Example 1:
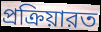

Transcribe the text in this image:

প্রক্রিয়ারত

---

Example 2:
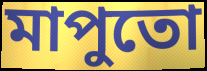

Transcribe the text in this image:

মাপুতো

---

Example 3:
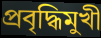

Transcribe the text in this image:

প্রবৃদ্ধিমুখী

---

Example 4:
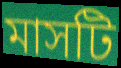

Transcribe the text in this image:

মাসটি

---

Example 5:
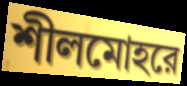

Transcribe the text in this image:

শীলমোহরে